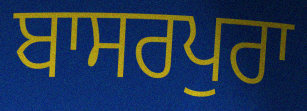
ਬਾਸਰਪੁਰਾ